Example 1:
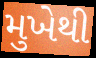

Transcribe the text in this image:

મુખેથી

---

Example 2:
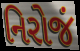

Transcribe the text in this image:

નિરોજં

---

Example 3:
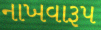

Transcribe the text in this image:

નાખવારૂપ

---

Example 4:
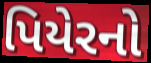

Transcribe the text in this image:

પિયેરનો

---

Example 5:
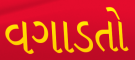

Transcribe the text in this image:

વગાડતો